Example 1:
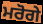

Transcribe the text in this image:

ਮਰੋਗੇ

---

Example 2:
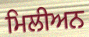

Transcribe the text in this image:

ਮਿਲੀਅਨ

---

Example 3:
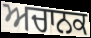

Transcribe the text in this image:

ਅਚਾਨਕ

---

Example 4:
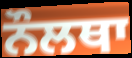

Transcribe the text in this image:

ਨੌਲਥਾ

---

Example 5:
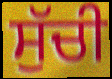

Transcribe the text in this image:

ਸੁੱਚੀ